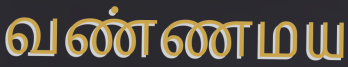
வண்ணமய